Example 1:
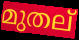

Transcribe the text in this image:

മുതല്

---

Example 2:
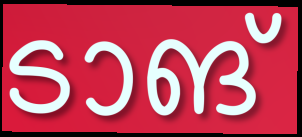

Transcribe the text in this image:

ടാങ്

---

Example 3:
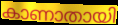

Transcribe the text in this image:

കാണാതായി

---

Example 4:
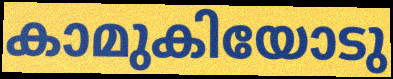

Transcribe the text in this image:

കാമുകിയോടു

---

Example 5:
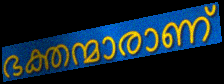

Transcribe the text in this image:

ഭക്തന്മാരാണ്